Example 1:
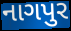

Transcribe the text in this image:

નાગપુર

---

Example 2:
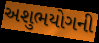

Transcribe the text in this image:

અશુભયોગની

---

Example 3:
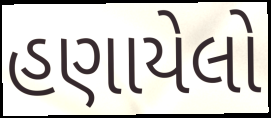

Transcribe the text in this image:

હણાયેલો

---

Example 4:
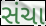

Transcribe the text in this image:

સંચા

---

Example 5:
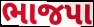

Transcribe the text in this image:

ભાજપા